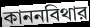
কাননবিথার